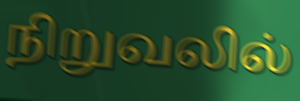
நிறுவலில்